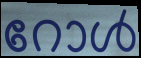
റോൾ